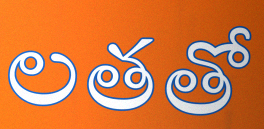
లతతో